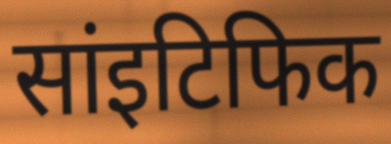
सांइटिफिक